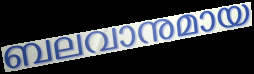
ബലവാനുമായ